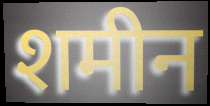
शमीन